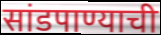
सांडपाण्याची